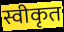
स्वीकृत